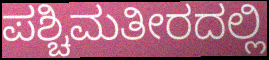
ಪಶ್ಚಿಮತೀರದಲ್ಲಿ